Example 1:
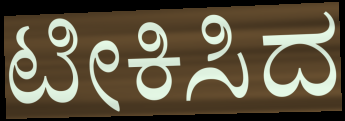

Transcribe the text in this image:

ಟೀಕಿಸಿದ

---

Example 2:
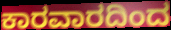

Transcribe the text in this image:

ಕಾರವಾರದಿಂದ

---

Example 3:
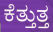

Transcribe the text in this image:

ಕೆತ್ತುತ್ತ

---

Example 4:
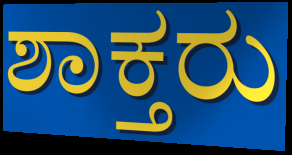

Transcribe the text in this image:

ಶಾಕ್ತರು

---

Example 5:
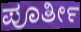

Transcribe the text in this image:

ಪೂರ್ತೀ